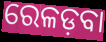
ରେଳଡ଼ବା